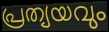
പ്രത്യയവും